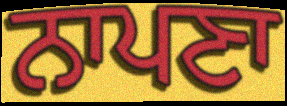
ਨਾਪਣਾ